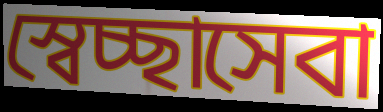
স্বেচ্ছাসেবা